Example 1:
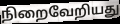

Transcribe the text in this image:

நிறைவேறியது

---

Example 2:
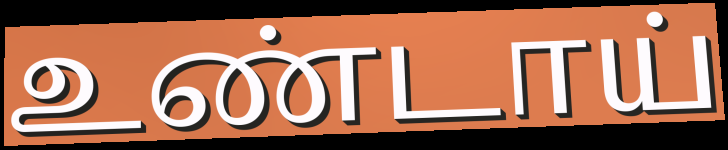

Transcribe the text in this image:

உண்டாய்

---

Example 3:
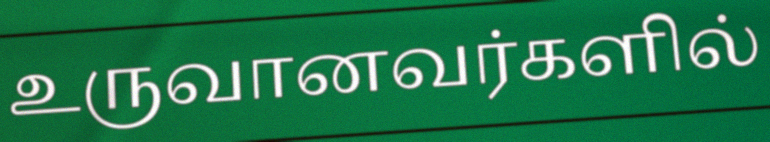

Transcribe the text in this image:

உருவானவர்களில்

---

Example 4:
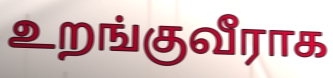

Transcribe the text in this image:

உறங்குவீராக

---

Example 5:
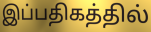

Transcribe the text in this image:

இப்பதிகத்தில்